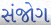
સંજોગ